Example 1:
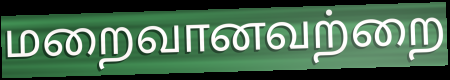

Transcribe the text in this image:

மறைவானவற்றை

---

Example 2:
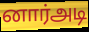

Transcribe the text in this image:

னார்அடி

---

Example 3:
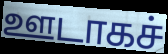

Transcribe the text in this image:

ஊடாகச்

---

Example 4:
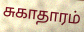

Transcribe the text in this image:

சுகாதாரம்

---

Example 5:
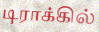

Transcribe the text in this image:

டிராக்கில்